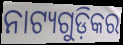
ନାଟ୍ୟଗୁଡ଼ିକର